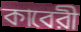
কাবেরী